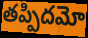
తప్పిదమో